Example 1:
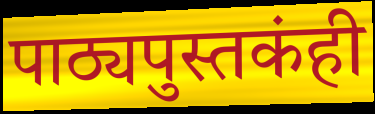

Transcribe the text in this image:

पाठ्यपुस्तकंही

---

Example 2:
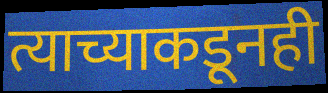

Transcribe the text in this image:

त्याच्याकडूनही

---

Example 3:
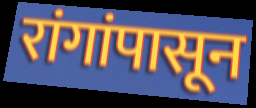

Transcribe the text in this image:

रांगांपासून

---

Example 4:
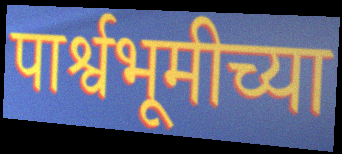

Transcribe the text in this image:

पार्श्वभूमीच्या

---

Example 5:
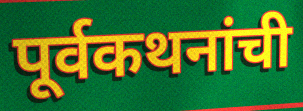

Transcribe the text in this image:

पूर्वकथनांची